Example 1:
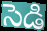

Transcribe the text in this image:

సెడి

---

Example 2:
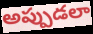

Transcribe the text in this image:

అప్పుడలా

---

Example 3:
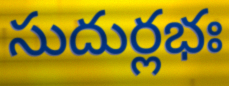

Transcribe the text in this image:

సుదుర్లభః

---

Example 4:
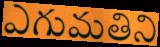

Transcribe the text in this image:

ఎగుమతిని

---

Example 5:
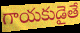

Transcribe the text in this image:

గాయకుడైతే